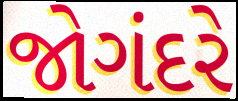
જોગંદરે